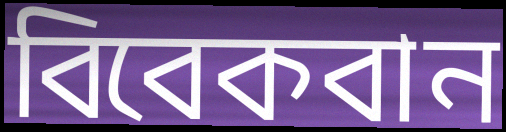
বিবেকবান